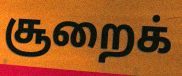
சூறைக்